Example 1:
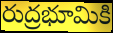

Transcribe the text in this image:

రుద్రభూమికి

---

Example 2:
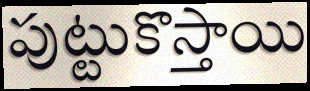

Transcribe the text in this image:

పుట్టుకొస్తాయి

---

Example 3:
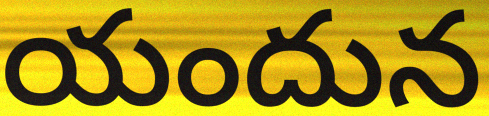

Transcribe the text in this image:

యందున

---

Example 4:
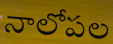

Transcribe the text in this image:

నాలోపల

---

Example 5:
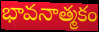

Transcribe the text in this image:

భావనాత్మకం